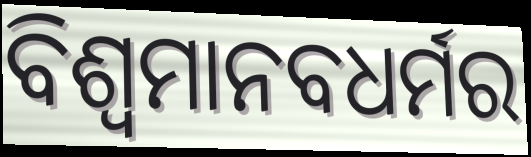
ବିଶ୍ବମାନବଧର୍ମର